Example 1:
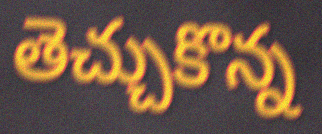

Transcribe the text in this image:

తెచ్చుకొన్న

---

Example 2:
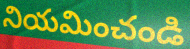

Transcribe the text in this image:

నియమించండి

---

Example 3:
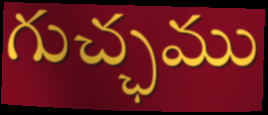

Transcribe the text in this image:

గుచ్ఛము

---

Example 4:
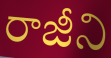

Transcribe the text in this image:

రాజీని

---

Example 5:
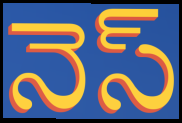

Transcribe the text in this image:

నెస్